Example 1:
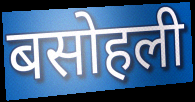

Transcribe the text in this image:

बसोहली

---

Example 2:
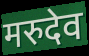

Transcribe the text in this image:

मरुदेव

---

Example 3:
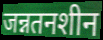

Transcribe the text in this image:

जन्नतनशीन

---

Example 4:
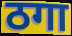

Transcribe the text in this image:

ठगा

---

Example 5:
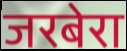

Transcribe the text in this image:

जरबेरा